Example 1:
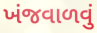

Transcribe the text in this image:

ખંજવાળવું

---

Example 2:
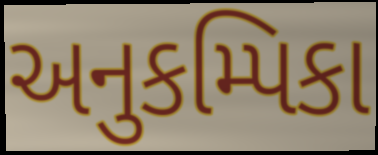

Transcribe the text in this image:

અનુકમ્પિકા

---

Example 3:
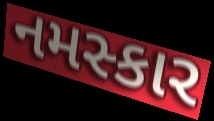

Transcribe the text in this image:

નમસ્કાર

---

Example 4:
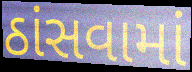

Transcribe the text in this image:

ઠાંસવામાં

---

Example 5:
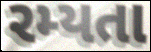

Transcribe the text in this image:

રમ્યતા